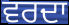
ਵਰਦਾ